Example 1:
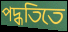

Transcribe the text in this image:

পদ্ধতিতে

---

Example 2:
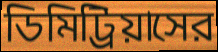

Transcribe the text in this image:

ডিমিট্রিয়াসের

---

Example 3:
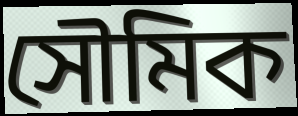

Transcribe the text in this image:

সৌমিক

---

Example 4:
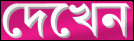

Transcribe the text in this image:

দেখেন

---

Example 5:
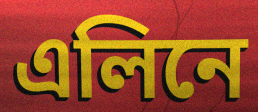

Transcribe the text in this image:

এলিনে